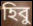
হিবু